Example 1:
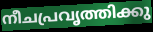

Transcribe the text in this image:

നീചപ്രവൃത്തിക്കു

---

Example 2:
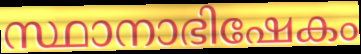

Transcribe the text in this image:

സ്ഥാനാഭിഷേകം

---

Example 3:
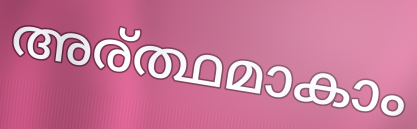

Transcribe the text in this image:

അര്ത്ഥമാകാം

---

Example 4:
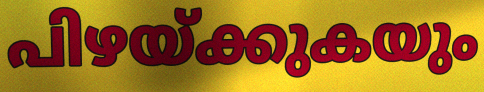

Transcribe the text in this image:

പിഴയ്ക്കുകയും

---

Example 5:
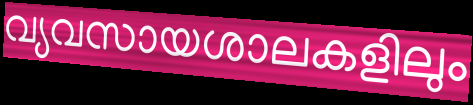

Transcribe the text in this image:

വ്യവസായശാലകളിലും